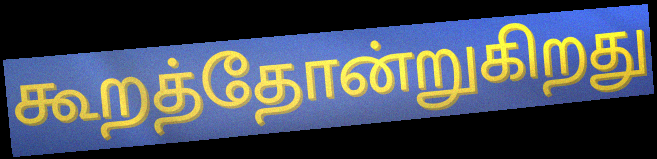
கூறத்தோன்றுகிறது